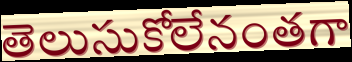
తెలుసుకోలేనంతగా